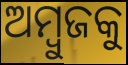
ଅମ୍ବୁଜକୁ